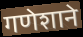
गणेशाने